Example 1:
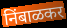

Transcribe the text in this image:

निंबाळकर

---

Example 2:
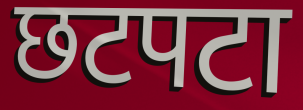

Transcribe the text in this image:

छटपटा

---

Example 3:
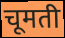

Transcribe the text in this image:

चूमती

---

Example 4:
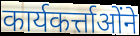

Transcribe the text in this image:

कार्यकर्त्ताओंने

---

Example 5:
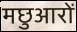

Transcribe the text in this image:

मछुआरों